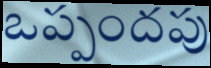
ఒప్పందపు